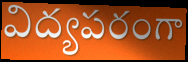
విద్యపరంగా